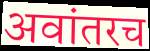
अवांतरच